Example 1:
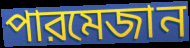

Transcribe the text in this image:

পারমেজান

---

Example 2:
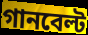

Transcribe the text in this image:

গানবেল্ট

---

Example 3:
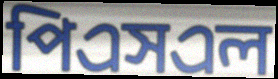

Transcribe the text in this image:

পিএসএল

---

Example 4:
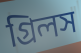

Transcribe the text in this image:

গ্রিলস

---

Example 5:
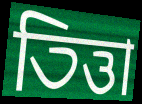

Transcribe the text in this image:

তিত্তা